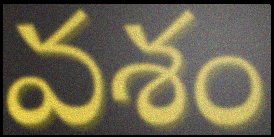
వశం